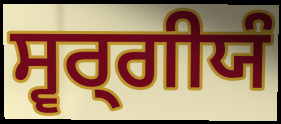
ਸ੍ਵਰ੍ਗੀਯੰ